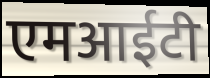
एमआईटी